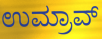
ಉಮ್ರಾವ್